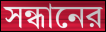
সন্ধানের